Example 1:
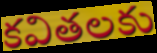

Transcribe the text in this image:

కవితలకు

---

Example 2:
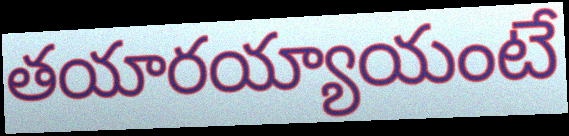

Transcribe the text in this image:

తయారయ్యాయంటే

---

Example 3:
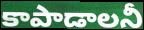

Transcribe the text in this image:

కాపాడాలనీ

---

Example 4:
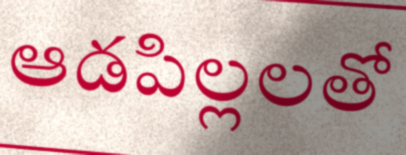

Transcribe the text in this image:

ఆడపిల్లలతో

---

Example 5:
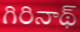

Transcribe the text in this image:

గిరినాథ్